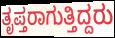
ತೃಪ್ತರಾಗುತ್ತಿದ್ದರು